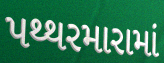
પથ્થરમારામાં